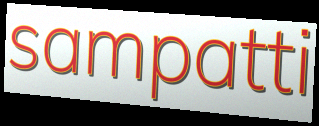
sampatti